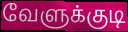
வேளுக்குடி